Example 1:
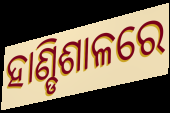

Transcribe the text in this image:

ହାଣ୍ଡିଶାଳରେ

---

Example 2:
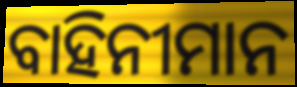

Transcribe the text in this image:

ବାହିନୀମାନ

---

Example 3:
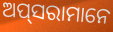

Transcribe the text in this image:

ଅପ୍‌ସରାମାନେ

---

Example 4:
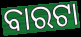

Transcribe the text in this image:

ବାରଟା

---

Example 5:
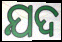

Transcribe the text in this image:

ଯଦ